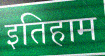
इतिहाम